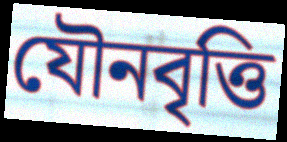
যৌনবৃত্তি